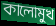
কালোমুখ